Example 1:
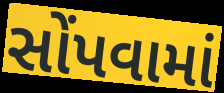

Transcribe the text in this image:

સોંપવામાં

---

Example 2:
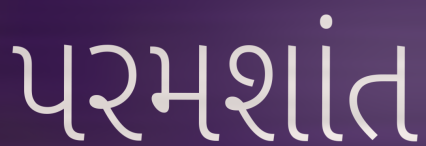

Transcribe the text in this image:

પરમશાંત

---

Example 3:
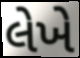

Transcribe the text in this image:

લેખે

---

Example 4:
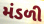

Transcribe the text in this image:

મંડળી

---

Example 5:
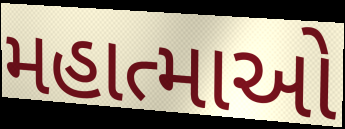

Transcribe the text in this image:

મહાત્માઓ